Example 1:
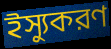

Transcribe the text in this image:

ইস্যুকরণ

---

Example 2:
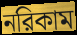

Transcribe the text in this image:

নরিকাম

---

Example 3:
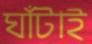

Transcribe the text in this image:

ঘাঁটাই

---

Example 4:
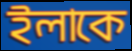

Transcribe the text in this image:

ইলাকে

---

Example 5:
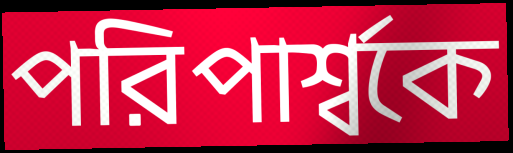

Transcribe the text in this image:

পরিপার্শ্বকে